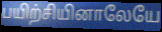
பயிற்சியினாலேயே